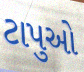
ટાપુઓ